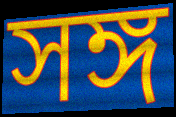
সঙ্গ